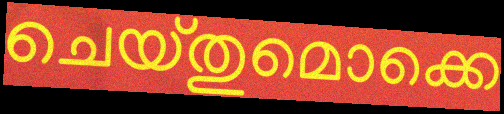
ചെയ്തുമൊക്കെ